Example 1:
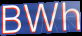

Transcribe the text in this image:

BWh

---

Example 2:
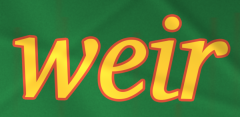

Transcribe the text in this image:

weir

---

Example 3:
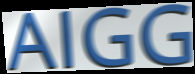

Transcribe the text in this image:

AIGG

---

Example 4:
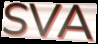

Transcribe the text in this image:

SVA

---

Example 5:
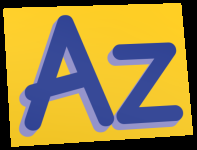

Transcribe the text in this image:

Az